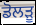
ਡੋਲੜੂ